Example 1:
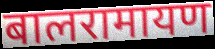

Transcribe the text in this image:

बालरामायण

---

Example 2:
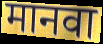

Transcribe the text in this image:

मानवा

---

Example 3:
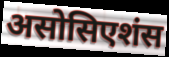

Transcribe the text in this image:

असोसिएशंस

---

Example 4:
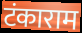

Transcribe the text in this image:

टंकाराम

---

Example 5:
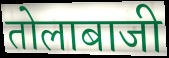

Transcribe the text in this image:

तोलाबाजी